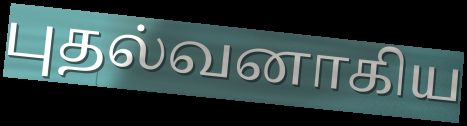
புதல்வனாகிய